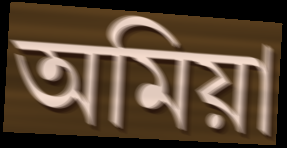
অমিয়া